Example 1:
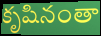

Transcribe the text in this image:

కృషినంతా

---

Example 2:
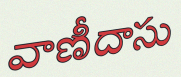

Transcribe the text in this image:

వాణీదాసు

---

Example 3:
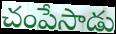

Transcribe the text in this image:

చంపేసాడు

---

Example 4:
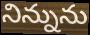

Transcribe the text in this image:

నిన్నును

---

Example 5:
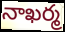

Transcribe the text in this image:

నాఖర్మ